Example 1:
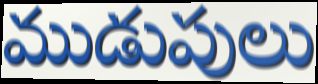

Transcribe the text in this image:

ముడుపులు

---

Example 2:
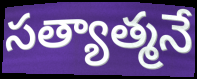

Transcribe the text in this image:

సత్యాత్మనే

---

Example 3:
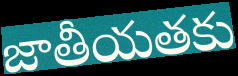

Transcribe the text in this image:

జాతీయతకు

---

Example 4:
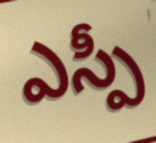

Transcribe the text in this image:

ఎస్పీ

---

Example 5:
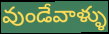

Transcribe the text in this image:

వుండేవాళ్ళు